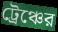
ট্রেঞ্চের